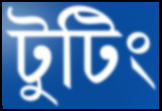
টুটিং